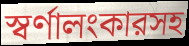
স্বর্ণালংকারসহ